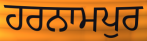
ਹਰਨਾਮਪੁਰ